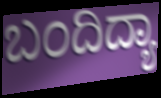
ಬಂದಿದ್ಯಾ